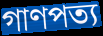
গাণপত্য